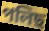
পলিছ